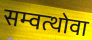
सम्वत्थोवा